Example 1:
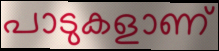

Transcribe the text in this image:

പാടുകളാണ്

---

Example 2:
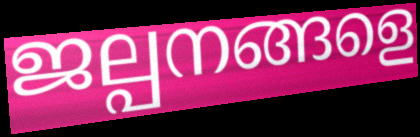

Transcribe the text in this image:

ജല്പനങ്ങളെ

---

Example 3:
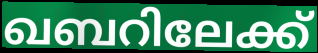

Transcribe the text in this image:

ഖബറിലേക്ക്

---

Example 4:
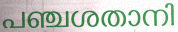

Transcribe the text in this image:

പഞ്ചശതാനി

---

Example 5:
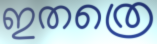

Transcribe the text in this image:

ഇതത്രെ